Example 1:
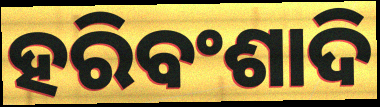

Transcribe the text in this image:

ହରିବଂଶାଦି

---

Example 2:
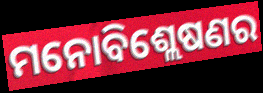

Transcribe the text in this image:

ମନୋବିଶ୍ଲେଷଣର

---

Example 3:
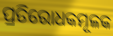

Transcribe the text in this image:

ପ୍ରତିରୋଧକମୂଳକ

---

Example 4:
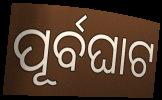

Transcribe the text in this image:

ପୂର୍ବଘାଟ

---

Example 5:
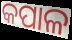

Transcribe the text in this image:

କପାଳ